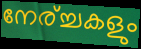
നേര്ച്ചകളും